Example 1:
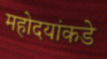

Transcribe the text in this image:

महोदयांकडे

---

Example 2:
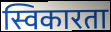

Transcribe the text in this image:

स्विकारता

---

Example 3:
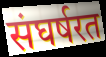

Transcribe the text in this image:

संघर्षरत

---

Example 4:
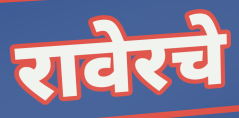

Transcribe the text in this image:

रावेरचे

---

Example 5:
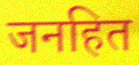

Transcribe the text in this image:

जनहित